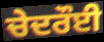
ਚੇਦਰੌਈ